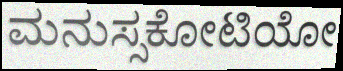
ಮನುಸ್ಸಕೋಟಿಯೋ